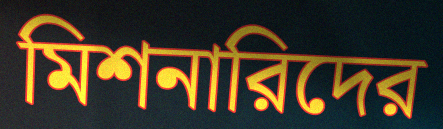
মিশনারিদের